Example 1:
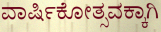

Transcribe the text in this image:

ವಾರ್ಷಿಕೋತ್ಸವಕ್ಕಾಗಿ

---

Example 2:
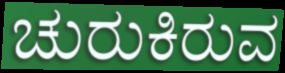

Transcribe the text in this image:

ಚುರುಕಿರುವ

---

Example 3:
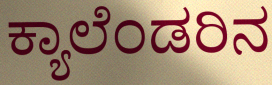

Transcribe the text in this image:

ಕ್ಯಾಲೆಂಡರಿನ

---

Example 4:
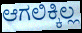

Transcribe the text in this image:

ಆಗಲಿಕ್ಕಿಲ್ಲ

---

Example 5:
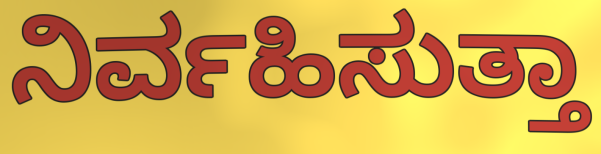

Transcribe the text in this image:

ನಿರ್ವಹಿಸುತ್ತಾ